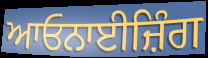
ਆਓਨਾਈਜ਼ਿੰਗ